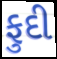
ફુદી